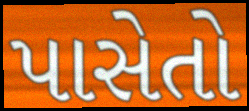
પાસેતો